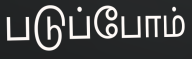
படுப்போம்